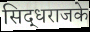
सिद्धराजके